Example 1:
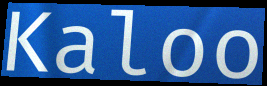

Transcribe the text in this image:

Kaloo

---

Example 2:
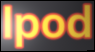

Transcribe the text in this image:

Ipod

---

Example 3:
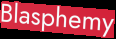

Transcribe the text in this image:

Blasphemy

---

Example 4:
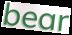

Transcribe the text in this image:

bear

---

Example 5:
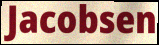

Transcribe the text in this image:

Jacobsen